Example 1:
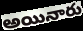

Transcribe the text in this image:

అయినారు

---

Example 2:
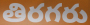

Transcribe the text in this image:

తిరగరు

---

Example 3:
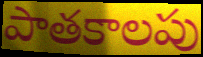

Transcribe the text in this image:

పాతకాలపు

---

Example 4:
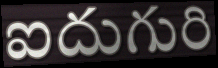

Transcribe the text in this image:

ఐదుగురి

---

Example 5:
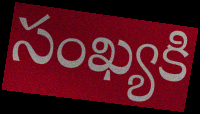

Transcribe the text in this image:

సంఖ్యకి